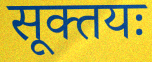
सूक्तयः